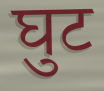
घुट